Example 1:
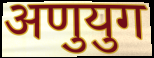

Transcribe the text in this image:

अणुयुग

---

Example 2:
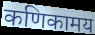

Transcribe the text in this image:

कणिकामय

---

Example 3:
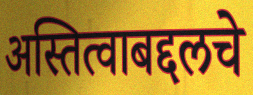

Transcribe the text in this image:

अस्तित्वाबद्दलचे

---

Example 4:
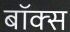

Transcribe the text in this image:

बॉक्‍स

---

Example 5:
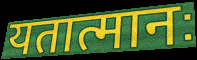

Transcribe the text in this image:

यतात्मानः